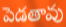
పెడతావు